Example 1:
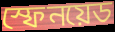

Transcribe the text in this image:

স্ফেনয়েড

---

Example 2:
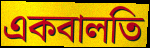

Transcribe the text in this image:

একবালতি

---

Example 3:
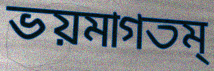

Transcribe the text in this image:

ভয়মাগতম্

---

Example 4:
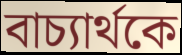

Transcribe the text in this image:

বাচ্যার্থকে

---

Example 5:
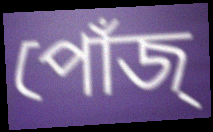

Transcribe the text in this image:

পোঁজ্